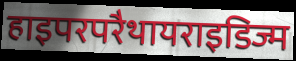
हाइपरपरैथायराइडिज्म